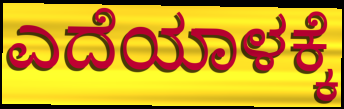
ಎದೆಯಾಳಕ್ಕೆ